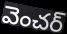
వెంచర్